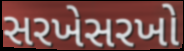
સરખેસરખો